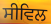
ਸੀਵਿਲ